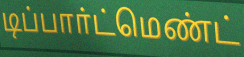
டிப்பார்ட்மெண்ட்